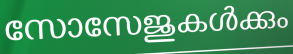
സോസേജുകൾക്കും